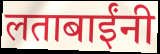
लताबाईंनी